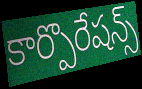
కార్పొరేషన్స్